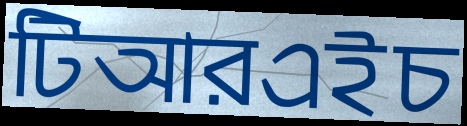
টিআরএইচ